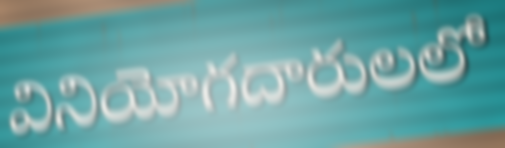
వినియోగదారులలో